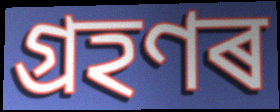
গ্ৰহণৰ